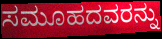
ಸಮೂಹದವರನ್ನು